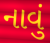
નાવું